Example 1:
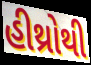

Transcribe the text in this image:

હીથ્રોથી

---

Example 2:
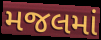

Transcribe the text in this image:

મજલમાં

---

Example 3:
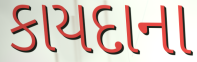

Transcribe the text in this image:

કાયદાના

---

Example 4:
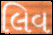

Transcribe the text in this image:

લિવ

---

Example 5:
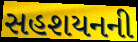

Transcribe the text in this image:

સહશયનની